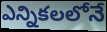
ఎన్నికలలోనే